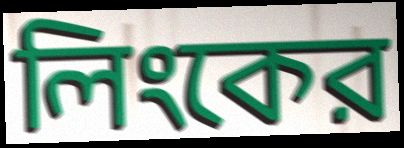
লিংকের